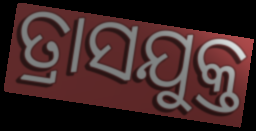
ତ୍ରାସଯୁକ୍ତ